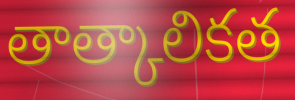
తాత్కాలికత